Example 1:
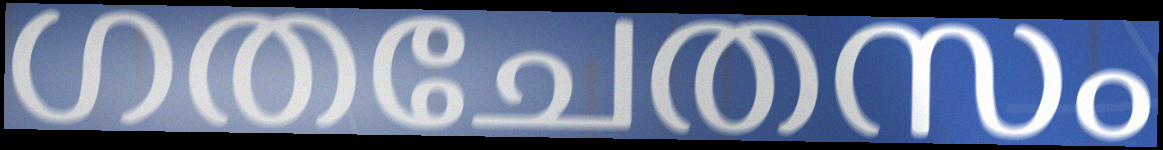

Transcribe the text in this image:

ഗതചേതസം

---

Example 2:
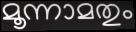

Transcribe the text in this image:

മൂന്നാമതും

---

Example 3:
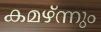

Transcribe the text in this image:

കമഴ്ന്നും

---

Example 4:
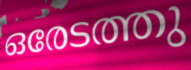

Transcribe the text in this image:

ഒരേടത്തു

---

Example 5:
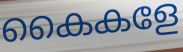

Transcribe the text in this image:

കൈകളേ